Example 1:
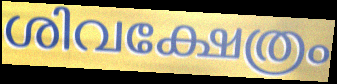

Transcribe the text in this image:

ശിവക്ഷേത്രം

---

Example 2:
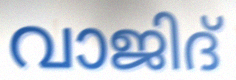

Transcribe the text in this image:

വാജിദ്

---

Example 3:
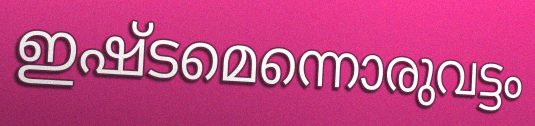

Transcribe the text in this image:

ഇഷ്ടമെന്നൊരുവട്ടം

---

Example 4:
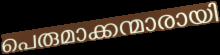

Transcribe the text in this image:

പെരുമാക്കന്മാരായി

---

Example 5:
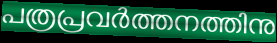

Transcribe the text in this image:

പത്രപ്രവർത്തനത്തിനു